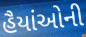
હૈયાંઓની